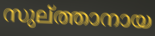
സുല്ത്താനായ